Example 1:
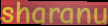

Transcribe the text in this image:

sharanu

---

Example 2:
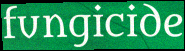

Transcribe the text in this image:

fungicide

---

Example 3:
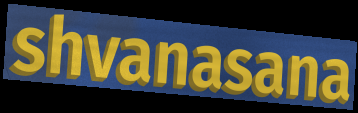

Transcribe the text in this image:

shvanasana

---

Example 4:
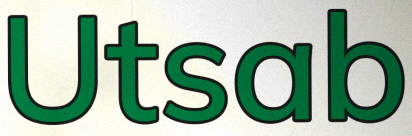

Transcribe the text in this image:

Utsab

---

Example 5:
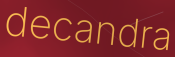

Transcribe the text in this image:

decandra